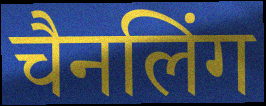
चैनलिंग